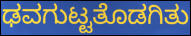
ಢವಗುಟ್ಟತೊಡಗಿತು